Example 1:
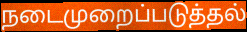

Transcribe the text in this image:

நடைமுறைப்படுத்தல்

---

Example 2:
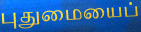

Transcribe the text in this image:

புதுமையைப்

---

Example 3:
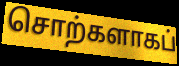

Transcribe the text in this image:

சொற்களாகப்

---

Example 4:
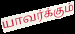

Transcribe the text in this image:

யாவர்க்கும்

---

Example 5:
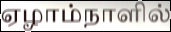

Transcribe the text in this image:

ஏழாம்நாளில்